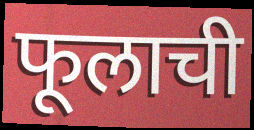
फूलाची